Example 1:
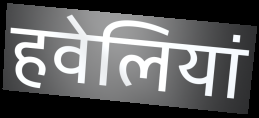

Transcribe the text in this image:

हवेलियां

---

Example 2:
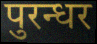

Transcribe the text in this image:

पुरन्धर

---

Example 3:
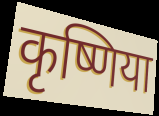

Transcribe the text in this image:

कृष्णिया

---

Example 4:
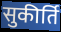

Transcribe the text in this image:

सुकीर्ति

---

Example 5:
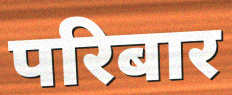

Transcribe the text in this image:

परिबार